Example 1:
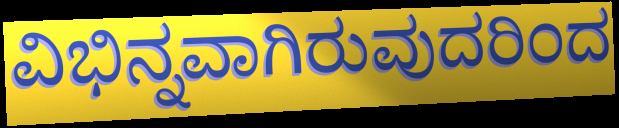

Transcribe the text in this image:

ವಿಭಿನ್ನವಾಗಿರುವುದರಿಂದ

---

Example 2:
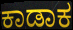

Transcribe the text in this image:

ಕಾಡಾಕ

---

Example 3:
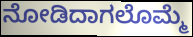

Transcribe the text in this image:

ನೋಡಿದಾಗಲೊಮ್ಮೆ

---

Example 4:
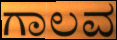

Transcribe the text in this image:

ಗಾಲವ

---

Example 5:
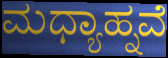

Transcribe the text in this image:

ಮಧ್ಯಾಹ್ನವೆ